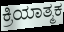
ಕ್ರಿಯಾತ್ಮಕ